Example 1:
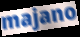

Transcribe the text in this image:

majano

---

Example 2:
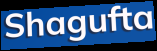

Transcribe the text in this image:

Shagufta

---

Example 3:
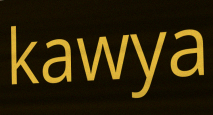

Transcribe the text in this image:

kawya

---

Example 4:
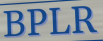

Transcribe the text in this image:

BPLR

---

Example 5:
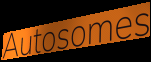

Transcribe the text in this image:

Autosomes